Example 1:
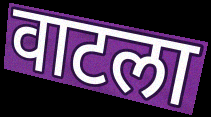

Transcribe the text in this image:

वाटला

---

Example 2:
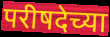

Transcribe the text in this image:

परीषदेच्या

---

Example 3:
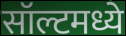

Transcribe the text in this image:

सॉल्टमध्ये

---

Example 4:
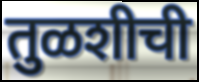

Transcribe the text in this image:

तुळशीची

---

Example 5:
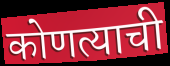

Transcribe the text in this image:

कोणत्याची